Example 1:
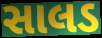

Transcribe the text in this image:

સાલડ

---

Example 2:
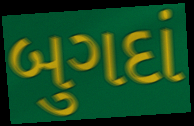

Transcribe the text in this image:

બુગદાં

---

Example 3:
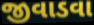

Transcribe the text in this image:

જીવાડવા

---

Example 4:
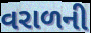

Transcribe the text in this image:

વરાળની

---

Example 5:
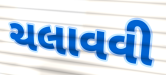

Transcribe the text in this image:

ચલાવવી